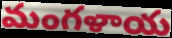
మంగళాయ